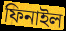
ফিনাইল